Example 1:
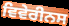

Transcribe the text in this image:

ਵਿਵੇਰੀਨਸ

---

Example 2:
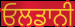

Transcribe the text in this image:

ਓਲਡਾਨੀ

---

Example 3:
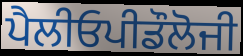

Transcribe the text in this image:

ਪੈਲੀਓਪੀਡੌਲੋਜੀ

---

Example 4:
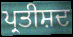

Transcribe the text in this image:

ਪ੍ਰਤੀਸ਼ਦ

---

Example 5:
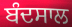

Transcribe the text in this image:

ਬੰਦਸਾਲ